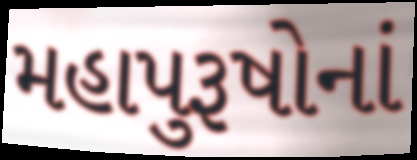
મહાપુરૂષોનાં